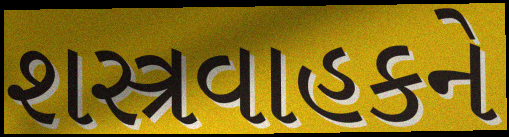
શસ્ત્રવાહકને